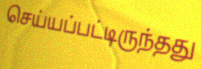
செய்யப்பட்டிருந்தது